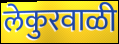
लेकुरवाळी